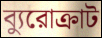
ব্যুরোক্রাট